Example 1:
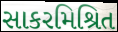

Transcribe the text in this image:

સાકરમિશ્રિત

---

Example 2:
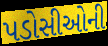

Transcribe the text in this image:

પડોસીઓની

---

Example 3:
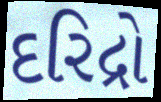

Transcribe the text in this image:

દરિદ્રો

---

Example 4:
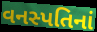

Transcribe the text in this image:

વનસ્પતિનાં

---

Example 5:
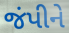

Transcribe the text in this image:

જંપીને